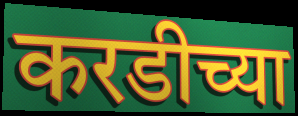
करडीच्या